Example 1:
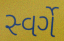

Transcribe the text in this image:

સ્વર્ગે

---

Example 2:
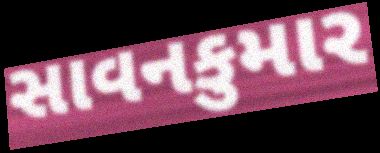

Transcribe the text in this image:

સાવનકુમાર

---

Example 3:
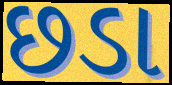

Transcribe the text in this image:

છડા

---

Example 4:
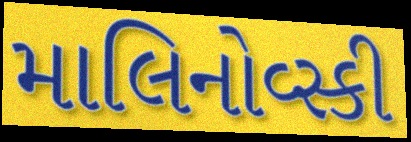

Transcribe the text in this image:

માલિનોવ્સ્કી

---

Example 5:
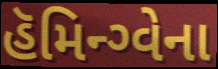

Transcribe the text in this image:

હૅમિન્ગ્વેના